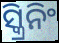
ସ୍କ୍ରିନିଂ